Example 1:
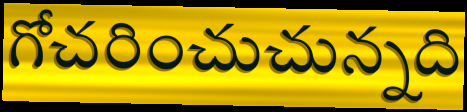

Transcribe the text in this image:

గోచరించుచున్నది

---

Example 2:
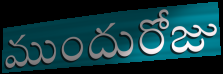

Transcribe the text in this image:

ముందురోజు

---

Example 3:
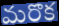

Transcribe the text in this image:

మరొక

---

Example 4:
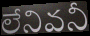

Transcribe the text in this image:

లేనివనీ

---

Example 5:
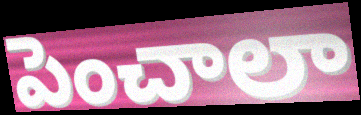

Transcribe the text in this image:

పెంచాలా